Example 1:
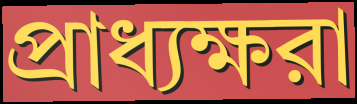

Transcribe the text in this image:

প্রাধ্যক্ষরা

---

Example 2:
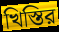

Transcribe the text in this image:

খিস্তির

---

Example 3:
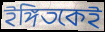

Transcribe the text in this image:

ইঙ্গিতকেই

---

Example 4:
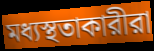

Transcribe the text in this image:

মধ্যস্থতাকারীরা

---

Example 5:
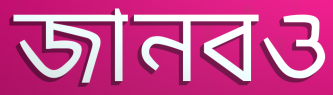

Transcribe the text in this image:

জানবও